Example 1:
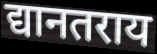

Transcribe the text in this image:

द्यानतराय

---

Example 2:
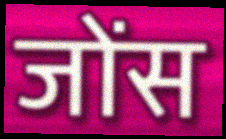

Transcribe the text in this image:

जोंस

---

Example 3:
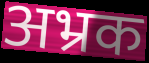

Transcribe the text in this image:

अभ्रक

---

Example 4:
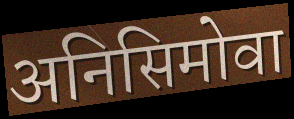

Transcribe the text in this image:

अनिसिमोवा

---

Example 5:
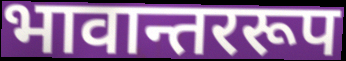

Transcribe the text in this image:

भावान्तररूप